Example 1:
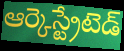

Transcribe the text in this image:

ఆర్కెస్ట్రేటెడ్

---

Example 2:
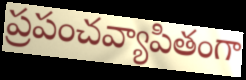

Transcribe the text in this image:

ప్రపంచవ్యాపితంగా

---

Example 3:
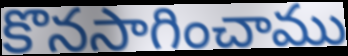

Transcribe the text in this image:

కొనసాగించాము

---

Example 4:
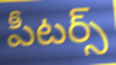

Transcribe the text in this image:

పీటర్స్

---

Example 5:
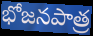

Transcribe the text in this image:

భోజనపాత్ర